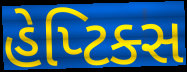
હેપ્ટિક્સ